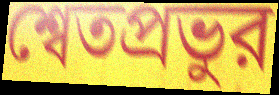
শ্বেতপ্রভুর